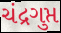
ચંદ્રગુપ્ત